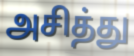
அசித்து